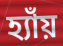
হ্যাঁয়